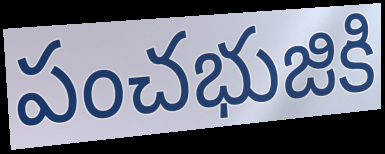
పంచభుజికి